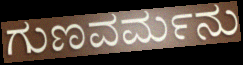
ಗುಣವರ್ಮನು